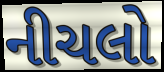
નીચલો